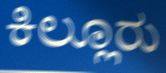
ಕಿಲ್ಲೂರು